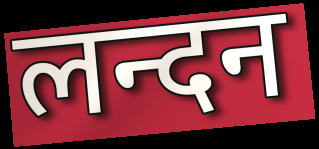
लन्दन